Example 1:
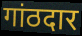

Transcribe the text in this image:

गांठदार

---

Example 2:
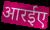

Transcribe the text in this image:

आरईए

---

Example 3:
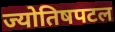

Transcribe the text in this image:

ज्योतिषपटल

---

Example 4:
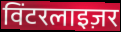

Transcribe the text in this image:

विंटरलाइज़र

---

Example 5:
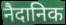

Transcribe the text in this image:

नैदानिक